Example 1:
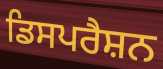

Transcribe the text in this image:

ਡਿਸਪਰੈਸ਼ਨ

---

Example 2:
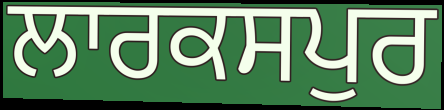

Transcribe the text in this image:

ਲਾਰਕਸਪੁਰ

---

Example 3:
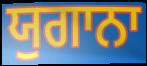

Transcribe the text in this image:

ਯੁਗਾਨਾ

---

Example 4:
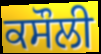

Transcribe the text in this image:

ਕਸੌਲੀ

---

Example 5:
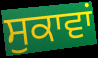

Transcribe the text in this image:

ਸੁਕਾਵਾਂ